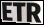
ETR